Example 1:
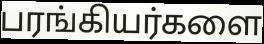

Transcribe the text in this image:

பரங்கியர்களை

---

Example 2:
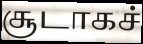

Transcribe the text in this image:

சூடாகச்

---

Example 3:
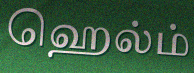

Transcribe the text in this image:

ஹெல்ம்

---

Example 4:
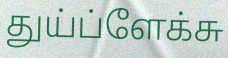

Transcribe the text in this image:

துய்ப்ளேக்சு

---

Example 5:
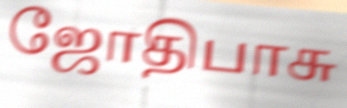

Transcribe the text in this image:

ஜோதிபாசு